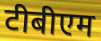
टीबीएम